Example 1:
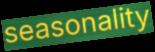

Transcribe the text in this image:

seasonality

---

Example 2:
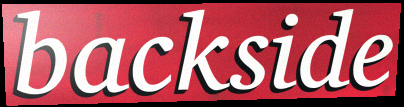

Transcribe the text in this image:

backside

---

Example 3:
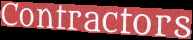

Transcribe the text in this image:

Contractors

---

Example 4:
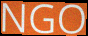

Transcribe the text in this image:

NGO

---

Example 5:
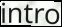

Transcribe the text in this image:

intro